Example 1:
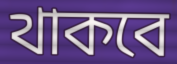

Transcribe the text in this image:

থাকবে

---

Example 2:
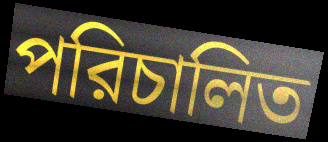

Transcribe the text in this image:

পরিচালিত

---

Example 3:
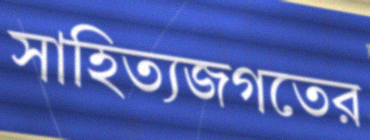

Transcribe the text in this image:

সাহিত্যজগতের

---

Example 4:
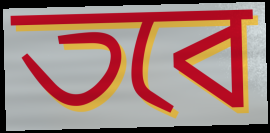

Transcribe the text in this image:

তবে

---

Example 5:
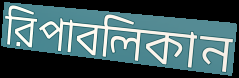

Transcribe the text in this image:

রিপাবলিকান